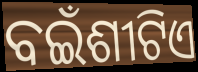
ବଇଁଶୀଟିଏ